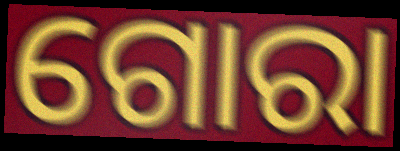
ଗୋରା